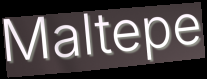
Maltepe